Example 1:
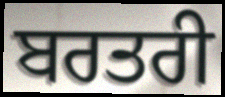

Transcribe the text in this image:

ਬਰਤਰੀ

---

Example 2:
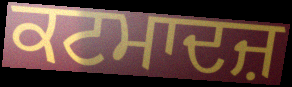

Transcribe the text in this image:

ਕਟਮਾਦਜ਼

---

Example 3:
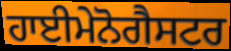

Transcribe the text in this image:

ਹਾਈਮੇਨੋਗੈਸਟਰ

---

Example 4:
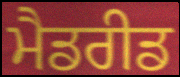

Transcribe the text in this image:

ਮੈਡਰੀਡ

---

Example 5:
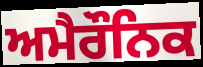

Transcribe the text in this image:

ਅਮੈਰੌਨਿਕ